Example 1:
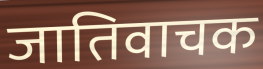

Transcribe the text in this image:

जातिवाचक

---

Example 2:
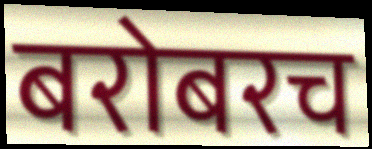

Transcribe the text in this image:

बरोबरच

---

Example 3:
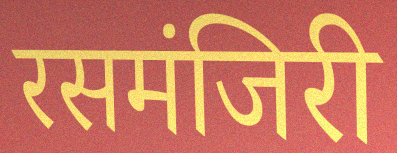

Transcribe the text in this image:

रसमंजिरी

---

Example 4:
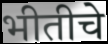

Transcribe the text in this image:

भीतीचे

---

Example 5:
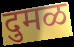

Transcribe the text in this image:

दुमळ